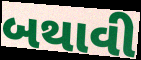
બથાવી